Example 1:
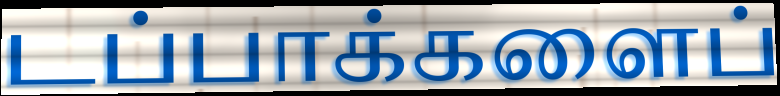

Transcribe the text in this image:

டப்பாக்களைப்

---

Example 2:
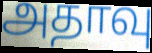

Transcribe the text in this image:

அதாவு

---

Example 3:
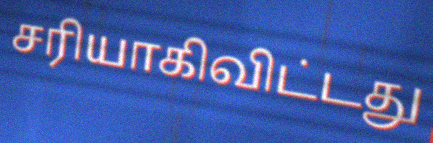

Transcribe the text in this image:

சரியாகிவிட்டது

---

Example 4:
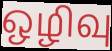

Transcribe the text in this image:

ஒழிவு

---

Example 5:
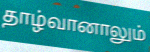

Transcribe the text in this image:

தாழ்வானாலும்